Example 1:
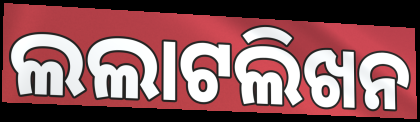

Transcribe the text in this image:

ଲଲାଟଲିଖନ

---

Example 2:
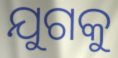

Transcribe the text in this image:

ଯୁଗକୁ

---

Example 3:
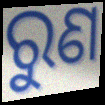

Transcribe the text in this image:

ରୁଣ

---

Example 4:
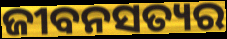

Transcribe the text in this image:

ଜୀବନସତ୍ୟର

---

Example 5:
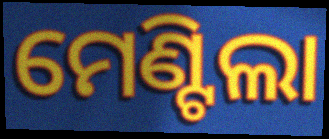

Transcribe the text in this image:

ମେଣ୍ଟିଲା